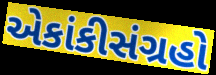
એકાંકીસંગ્રહો